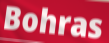
Bohras